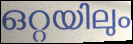
ഒറ്റയിലും